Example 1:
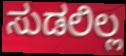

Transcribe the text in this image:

ಸುಡಲಿಲ್ಲ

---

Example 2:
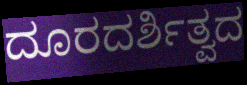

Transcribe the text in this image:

ದೂರದರ್ಶಿತ್ವದ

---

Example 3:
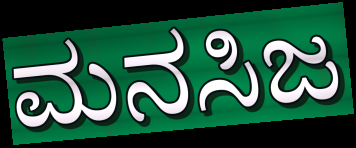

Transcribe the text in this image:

ಮನಸಿಜ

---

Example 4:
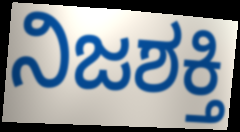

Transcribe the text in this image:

ನಿಜಶಕ್ತಿ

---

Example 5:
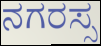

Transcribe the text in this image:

ನಗರಸ್ಸ